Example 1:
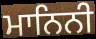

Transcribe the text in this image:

ਮਾਨਿਨੀ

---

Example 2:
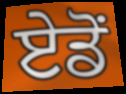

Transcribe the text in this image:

ਏਡੋਂ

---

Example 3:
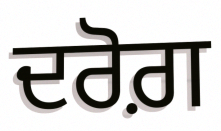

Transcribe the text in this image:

ਦਰੋਗ਼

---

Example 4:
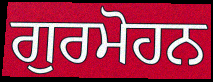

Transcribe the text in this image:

ਗੁਰਮੋਹਨ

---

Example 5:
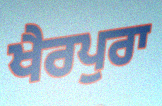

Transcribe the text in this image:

ਖੈਰਪੁਰਾ